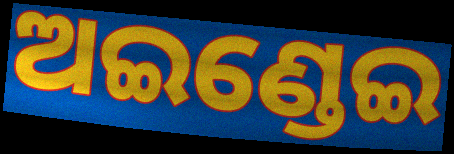
ଅଇଣ୍ଡେଇ